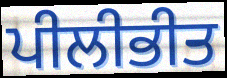
ਪੀਲੀਭੀਤ